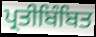
ਪ੍ਰਤੀਬਿੰਬਿਤ